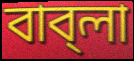
বাব্‌লা